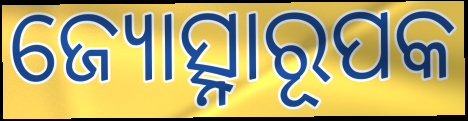
ଜ୍ୟୋତ୍ସ୍ନାରୂପକ